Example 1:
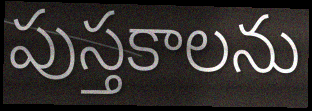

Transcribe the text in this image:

పుస్తకాలను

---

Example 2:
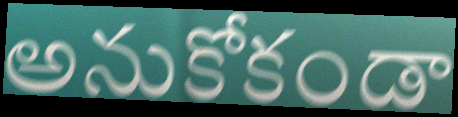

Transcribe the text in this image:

అనుకోకండా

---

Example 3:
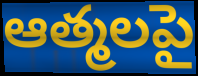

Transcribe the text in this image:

ఆత్మలపై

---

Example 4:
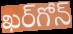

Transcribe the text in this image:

ఖర్‌గోన్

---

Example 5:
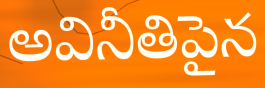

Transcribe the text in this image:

అవినీతిపైన